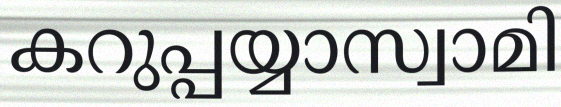
കറുപ്പയ്യാസ്വാമി